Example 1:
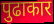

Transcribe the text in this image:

पुढाकार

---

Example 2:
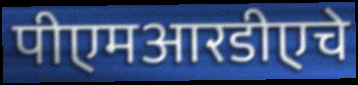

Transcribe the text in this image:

पीएमआरडीएचे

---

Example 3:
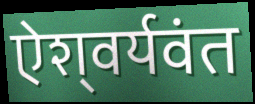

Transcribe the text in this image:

ऐश्वर्यवंत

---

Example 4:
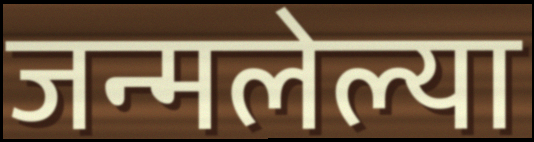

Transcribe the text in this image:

जन्मलेल्या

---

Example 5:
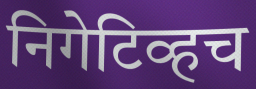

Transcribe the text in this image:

निगेटिव्हच